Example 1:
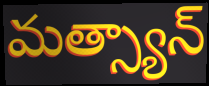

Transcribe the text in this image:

మత్స్యాన్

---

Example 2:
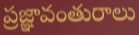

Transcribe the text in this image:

ప్రజ్ఞావంతురాలు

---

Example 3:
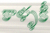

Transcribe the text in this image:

కాళ్ళకీ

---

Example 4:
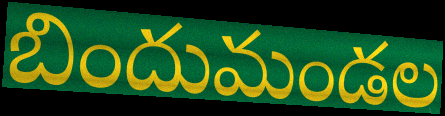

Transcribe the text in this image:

బిందుమండల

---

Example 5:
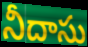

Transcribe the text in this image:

నీదాసు